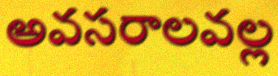
అవసరాలవల్ల